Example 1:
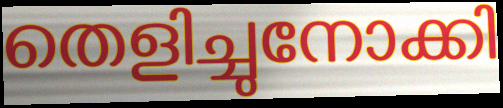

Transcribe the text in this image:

തെളിച്ചുനോക്കി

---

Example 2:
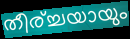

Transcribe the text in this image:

തീര്ച്ചയായും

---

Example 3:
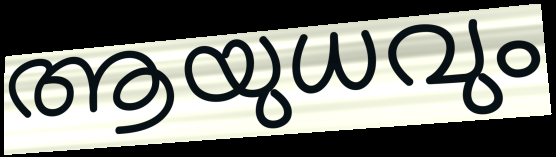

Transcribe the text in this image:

ആയുധവും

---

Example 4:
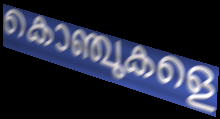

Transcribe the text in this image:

കൊഞ്ചുകളെ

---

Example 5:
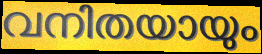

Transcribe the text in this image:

വനിതയായും